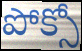
పోక్సో